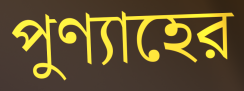
পুণ্যাহের